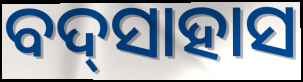
ବଦ୍‌ସାହାସ